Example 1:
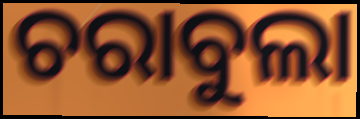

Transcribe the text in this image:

ଚରାବୁଲା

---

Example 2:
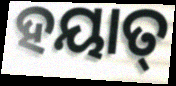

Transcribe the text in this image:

ହୟାତ୍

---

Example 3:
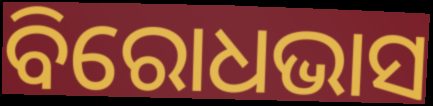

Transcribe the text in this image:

ବିରୋଧଭାସ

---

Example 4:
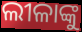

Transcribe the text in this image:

ଲୀଳାଙ୍କୁ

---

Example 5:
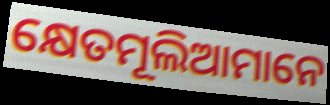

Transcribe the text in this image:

କ୍ଷେତମୂଲିଆମାନେ